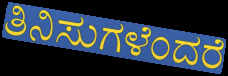
ತಿನಿಸುಗಳೆಂದರೆ